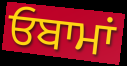
ਓਬਾਮਾਂ